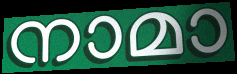
നാമാ